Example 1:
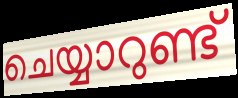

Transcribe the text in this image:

ചെയ്യാറുണ്ട്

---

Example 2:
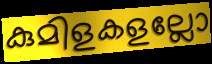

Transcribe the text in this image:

കുമിളകളല്ലോ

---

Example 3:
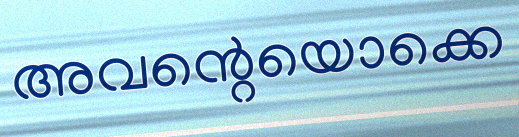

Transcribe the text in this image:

അവന്റെയൊക്കെ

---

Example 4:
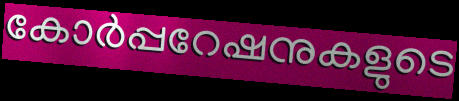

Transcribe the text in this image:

കോർപ്പറേഷനുകളുടെ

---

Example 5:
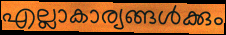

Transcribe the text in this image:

എല്ലാകാര്യങ്ങൾക്കും